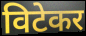
विटेकर